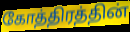
கோத்திரத்தின்